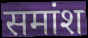
समांश